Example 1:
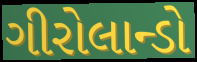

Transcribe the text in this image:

ગીરોલાન્ડો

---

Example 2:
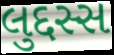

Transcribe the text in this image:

લુદ્દસ્સ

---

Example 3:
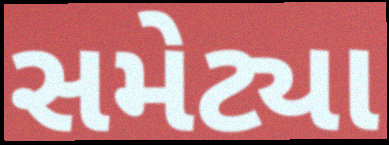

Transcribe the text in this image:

સમેટ્યા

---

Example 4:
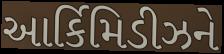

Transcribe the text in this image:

આર્કિમિડીઝને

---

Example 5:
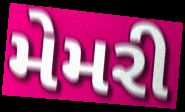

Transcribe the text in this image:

મેમરી